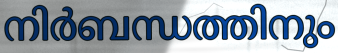
നിർബന്ധത്തിനും